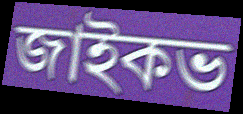
জাইকভ